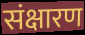
संक्षारण